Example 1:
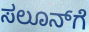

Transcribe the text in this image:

ಸಲೂನ್‍ಗೆ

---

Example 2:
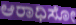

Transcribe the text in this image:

ಆರಾಧಿಸೋ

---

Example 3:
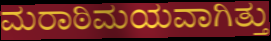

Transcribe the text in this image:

ಮರಾಠಿಮಯವಾಗಿತ್ತು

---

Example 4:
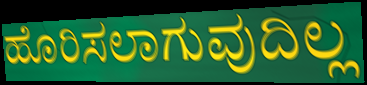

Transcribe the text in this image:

ಹೊರಿಸಲಾಗುವುದಿಲ್ಲ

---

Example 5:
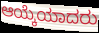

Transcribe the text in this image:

ಆಯ್ಕೆಯಾದರು